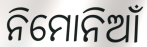
ନିମୋନିଆଁ